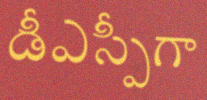
డీఎస్పీగా